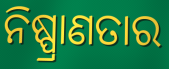
ନିଷ୍ପ୍ରାଣତାର